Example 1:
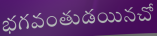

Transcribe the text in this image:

భగవంతుడయినచో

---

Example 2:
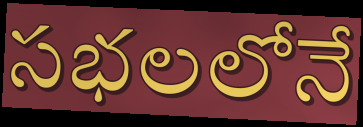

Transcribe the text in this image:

సభలలోనే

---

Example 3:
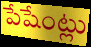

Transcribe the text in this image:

పేషేంట్లు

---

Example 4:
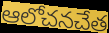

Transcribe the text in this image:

ఆలోచనచేత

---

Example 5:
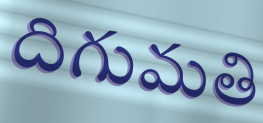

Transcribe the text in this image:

దిగుమతి